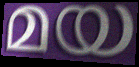
മയ